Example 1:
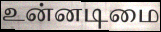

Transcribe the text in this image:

உன்னடிமை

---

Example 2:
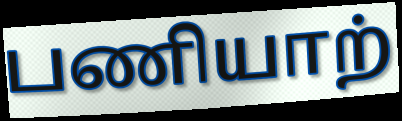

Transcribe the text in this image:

பணியாற்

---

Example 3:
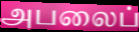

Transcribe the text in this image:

அபலைப்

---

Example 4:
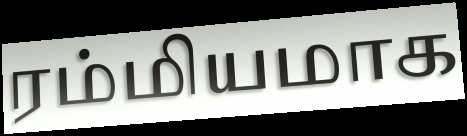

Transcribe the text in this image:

ரம்மியமாக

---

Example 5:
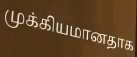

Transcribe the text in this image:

முக்கியமானதாக